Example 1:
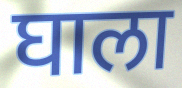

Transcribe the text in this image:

घाला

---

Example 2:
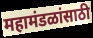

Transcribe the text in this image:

महामंडळांसाठी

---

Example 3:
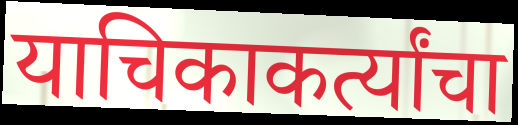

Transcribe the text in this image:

याचिकाकर्त्यांचा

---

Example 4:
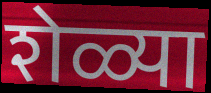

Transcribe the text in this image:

शेळ्या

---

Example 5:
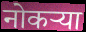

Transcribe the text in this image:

नोकऱ्या